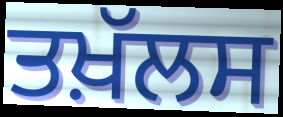
ਤਖ਼ੱਲਸ